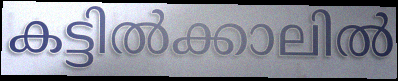
കട്ടിൽക്കാലിൽ